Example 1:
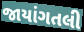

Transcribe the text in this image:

જાયાંગતલી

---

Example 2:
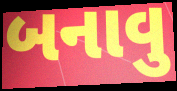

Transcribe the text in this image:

બનાવુ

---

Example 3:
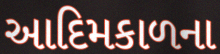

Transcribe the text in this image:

આદિમકાળના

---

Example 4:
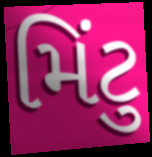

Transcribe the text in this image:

મિંટુ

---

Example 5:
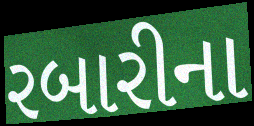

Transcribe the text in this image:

રબારીના